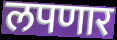
लपणार